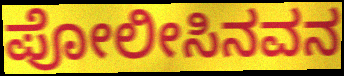
ಪೋಲೀಸಿನವನ